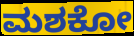
ಮಶಕೋ